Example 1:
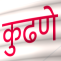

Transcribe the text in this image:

कुढणे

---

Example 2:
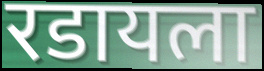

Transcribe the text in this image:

रडायला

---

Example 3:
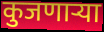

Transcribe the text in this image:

कुजणाऱ्या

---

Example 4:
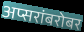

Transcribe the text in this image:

अप्सरांबरोबर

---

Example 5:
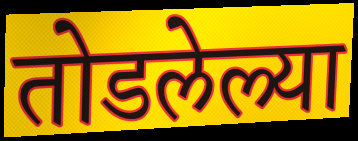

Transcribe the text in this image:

तोडलेल्या